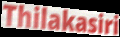
Thilakasiri